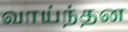
வாய்ந்தன